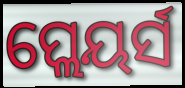
ପ୍ଲେୟର୍ସ